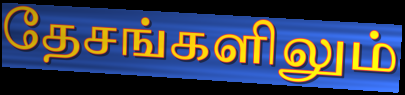
தேசங்களிலும்